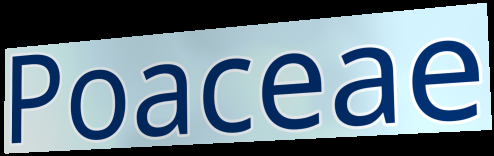
Poaceae